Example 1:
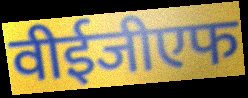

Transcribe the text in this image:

वीईजीएफ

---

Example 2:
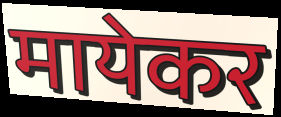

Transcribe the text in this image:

मायेकर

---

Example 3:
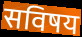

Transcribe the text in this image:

सविषय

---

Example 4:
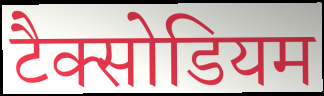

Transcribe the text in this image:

टैक्सोडियम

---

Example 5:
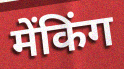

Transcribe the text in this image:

मेंकिंग